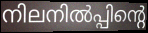
നിലനിൽപ്പിന്റെ